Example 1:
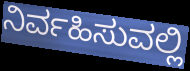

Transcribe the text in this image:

ನಿರ್ವಹಿಸುವಲ್ಲಿ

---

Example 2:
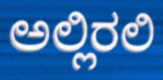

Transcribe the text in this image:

ಅಲ್ಲಿರಲಿ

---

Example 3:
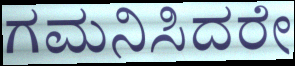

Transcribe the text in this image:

ಗಮನಿಸಿದರೇ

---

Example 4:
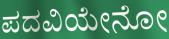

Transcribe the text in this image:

ಪದವಿಯೇನೋ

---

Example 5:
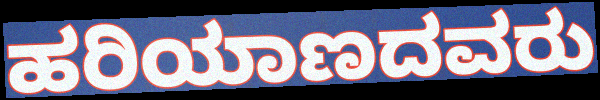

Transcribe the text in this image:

ಹರಿಯಾಣದವರು